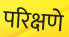
परिक्षणे